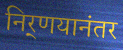
निर्णयानंतर